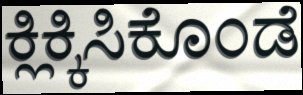
ಕ್ಲಿಕ್ಕಿಸಿಕೊಂಡೆ